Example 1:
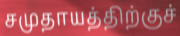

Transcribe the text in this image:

சமுதாயத்திற்குச்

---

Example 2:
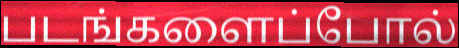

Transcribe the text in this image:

படங்களைப்போல்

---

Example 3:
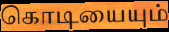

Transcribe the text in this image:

கொடியையும்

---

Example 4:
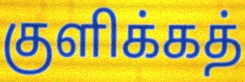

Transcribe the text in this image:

குளிக்கத்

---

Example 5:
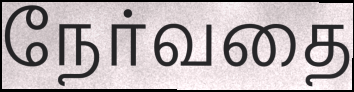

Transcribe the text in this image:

நேர்வதை